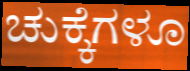
ಚುಕ್ಕೆಗಳೂ